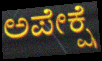
ಅಪೇಕ್ಷೆ